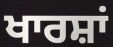
ਖਾਰਸ਼ਾਂ